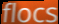
flocs